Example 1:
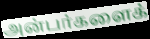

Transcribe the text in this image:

அன்பர்களைக்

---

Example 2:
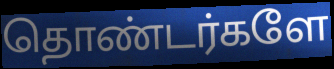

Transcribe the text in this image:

தொண்டர்களே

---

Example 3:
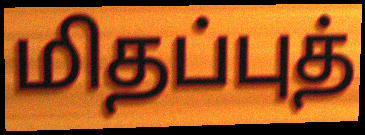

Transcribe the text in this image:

மிதப்புத்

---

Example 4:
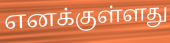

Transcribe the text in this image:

எனக்குள்ளது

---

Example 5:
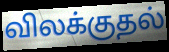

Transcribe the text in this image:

விலக்குதல்